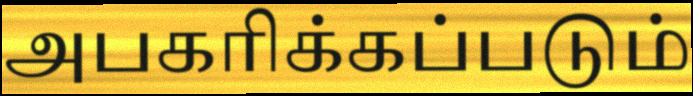
அபகரிக்கப்படும்